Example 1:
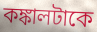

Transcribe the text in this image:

কঙ্কালটাকে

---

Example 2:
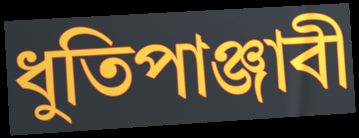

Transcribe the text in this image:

ধুতিপাঞ্জাবী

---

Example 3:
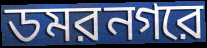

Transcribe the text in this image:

ডমরনগরে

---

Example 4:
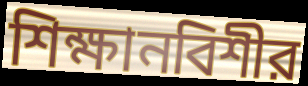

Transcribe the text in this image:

শিক্ষানবিশীর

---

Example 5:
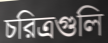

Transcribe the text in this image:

চরিত্রগুলি